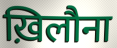
ख़िलौना